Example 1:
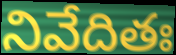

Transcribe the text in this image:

నివేదితః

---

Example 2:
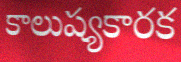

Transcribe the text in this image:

కాలుష్యకారక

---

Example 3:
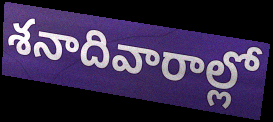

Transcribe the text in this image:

శనాదివారాల్లో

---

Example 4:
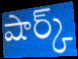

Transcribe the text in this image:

షార్క్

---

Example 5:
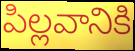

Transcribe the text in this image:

పిల్లవానికి